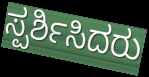
ಸ್ಪರ್ಶಿಸಿದರು